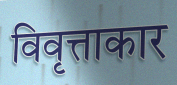
विवृत्ताकार